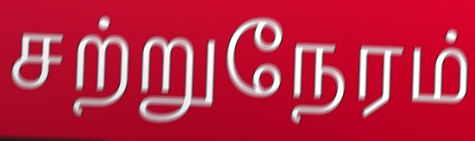
சற்றுநேரம்